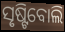
ସୃଷ୍ଟିବୋଲି